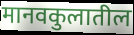
मानवकुलातील